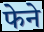
फेने